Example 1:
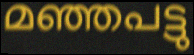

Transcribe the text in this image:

മഞ്ഞപട്ടു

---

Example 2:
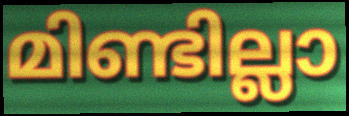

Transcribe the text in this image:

മിണ്ടില്ലാ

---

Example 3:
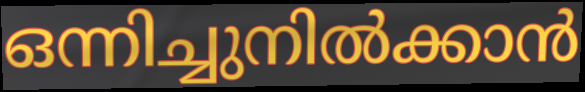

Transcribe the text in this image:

ഒന്നിച്ചുനിൽക്കാൻ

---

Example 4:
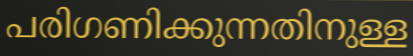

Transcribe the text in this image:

പരിഗണിക്കുന്നതിനുള്ള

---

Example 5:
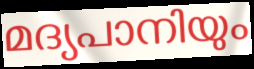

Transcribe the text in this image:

മദ്യപാനിയും